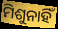
ମିଶୁନାହିଁ